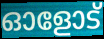
ഓളോട്